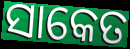
ସାକେତ